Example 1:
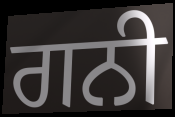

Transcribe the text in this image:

ਗਨੀ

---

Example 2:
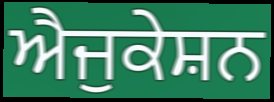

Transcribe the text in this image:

ਐਜੁਕੇਸ਼ਨ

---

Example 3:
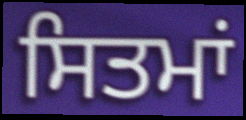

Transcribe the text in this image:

ਸਿਤਮਾਂ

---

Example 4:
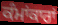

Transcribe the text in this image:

ਕੰਮਾਂਕਾਰਾਂ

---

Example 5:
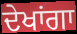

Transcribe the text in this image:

ਦੇਖਾਂਗਾ